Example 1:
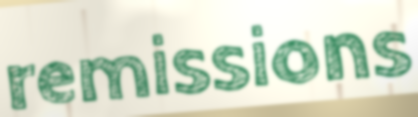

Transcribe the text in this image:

remissions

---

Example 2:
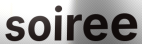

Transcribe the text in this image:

soiree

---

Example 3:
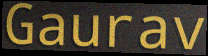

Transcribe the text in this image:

Gaurav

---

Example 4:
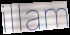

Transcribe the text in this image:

illam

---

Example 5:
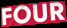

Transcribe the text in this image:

FOUR